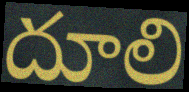
దూలి